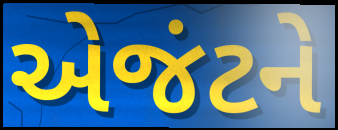
એજંટને